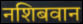
नशिबवान